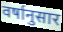
वर्षानुसार